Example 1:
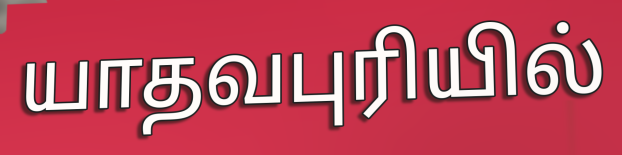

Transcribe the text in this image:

யாதவபுரியில்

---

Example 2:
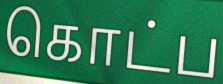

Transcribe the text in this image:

கொட்ப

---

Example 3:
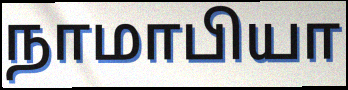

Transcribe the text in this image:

நாமாபியா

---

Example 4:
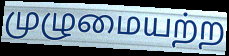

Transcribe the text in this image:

முழுமையற்ற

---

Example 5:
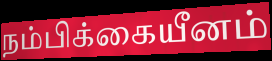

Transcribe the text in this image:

நம்பிக்கையீனம்